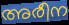
അരീന